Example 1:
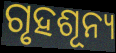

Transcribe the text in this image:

ଗୃହଶୂନ୍ୟ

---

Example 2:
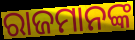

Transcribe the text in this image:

ରାଜମାନଙ୍କ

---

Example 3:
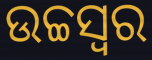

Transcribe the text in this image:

ଉଚ୍ଚସ୍ଵର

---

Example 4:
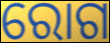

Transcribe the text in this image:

ରୋଗ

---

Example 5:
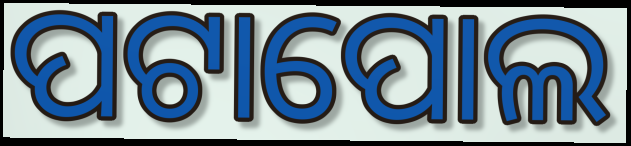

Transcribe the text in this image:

ପଟାପୋଲ